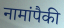
नामांपैकी